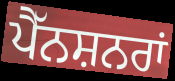
ਪੈੱਨਸ਼ਨਰਾਂ